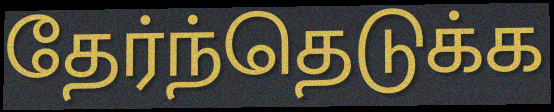
தேர்ந்தெடுக்க